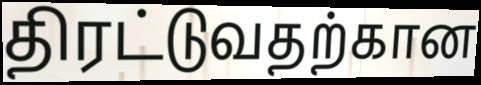
திரட்டுவதற்கான